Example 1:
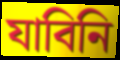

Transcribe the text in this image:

যাবিনি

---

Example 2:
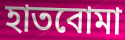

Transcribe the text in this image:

হাতবোমা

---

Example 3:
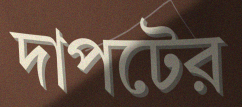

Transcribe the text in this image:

দাপটের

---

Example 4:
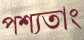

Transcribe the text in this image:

পশ্যতাং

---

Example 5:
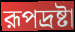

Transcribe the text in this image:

রূপদ্রষ্টা